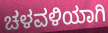
ಚಳವಳಿಯಾಗಿ